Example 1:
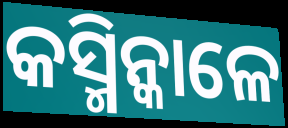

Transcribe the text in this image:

କସ୍ମିନ୍କାଳେ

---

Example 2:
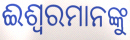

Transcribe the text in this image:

ଈଶ୍ୱରମାନଙ୍କୁ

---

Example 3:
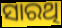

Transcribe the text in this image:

ସାରଥି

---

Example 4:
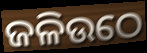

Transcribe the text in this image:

ଜଳିଉଠେ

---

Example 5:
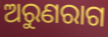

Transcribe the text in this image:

ଅରୁଣରାଗ